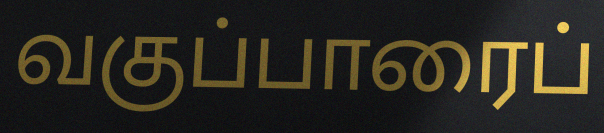
வகுப்பாரைப்